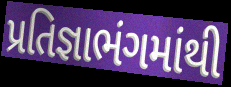
પ્રતિજ્ઞાભંગમાંથી